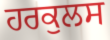
ਹਰਕੁਲਸ